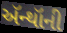
ઍન્થૉની